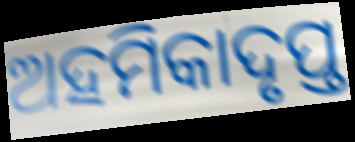
ଅହମିକାଦୃପ୍ତ